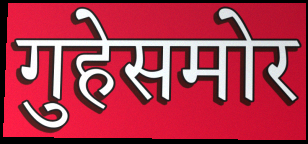
गुहेसमोर